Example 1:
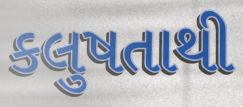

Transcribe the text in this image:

કલુષતાથી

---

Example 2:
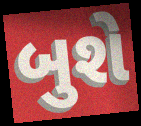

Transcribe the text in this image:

બુશે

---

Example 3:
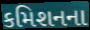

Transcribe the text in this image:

કમિશનના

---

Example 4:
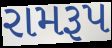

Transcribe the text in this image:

રામરૂપ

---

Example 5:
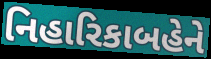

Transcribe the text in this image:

નિહારિકાબહેને